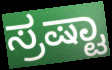
ಸ್ರಷ್ಟಾ